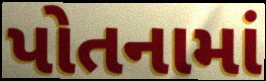
પોતનામાં